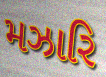
મઝારિ